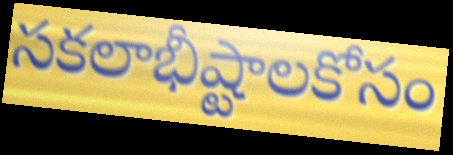
సకలాభీష్టాలకోసం